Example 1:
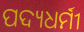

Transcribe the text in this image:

ପଦ୍ୟଧର୍ମୀ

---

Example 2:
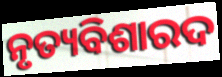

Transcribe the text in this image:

ନୃତ୍ୟବିଶାରଦ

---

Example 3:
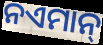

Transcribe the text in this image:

ନଏମାନ୍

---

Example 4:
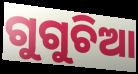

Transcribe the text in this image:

ଗୁଗୁଚିଆ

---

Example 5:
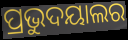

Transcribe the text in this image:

ପ୍ରଭୁଦୟାଲର